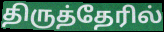
திருத்தேரில்